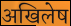
अखिलेष